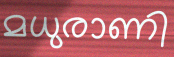
മധുരാണി